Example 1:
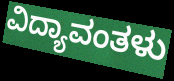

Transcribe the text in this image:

ವಿದ್ಯಾವಂತಳು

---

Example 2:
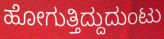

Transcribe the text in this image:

ಹೋಗುತ್ತಿದ್ದುದುಂಟು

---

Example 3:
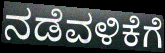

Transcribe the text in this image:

ನಡೆವಳಿಕೆಗೆ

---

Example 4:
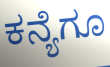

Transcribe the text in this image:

ಕನ್ಯೆಗೂ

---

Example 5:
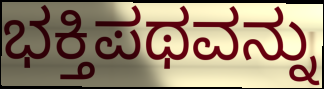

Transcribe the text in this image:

ಭಕ್ತಿಪಥವನ್ನು